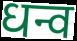
धन्व